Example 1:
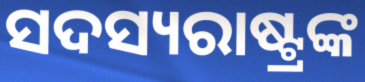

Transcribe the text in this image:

ସଦସ୍ୟରାଷ୍ଟ୍ରଙ୍କ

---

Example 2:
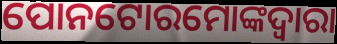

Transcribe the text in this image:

ପୋନଟୋରମୋଙ୍କଦ୍ୱାରା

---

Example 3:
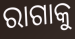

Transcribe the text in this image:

ରାଗାକୁ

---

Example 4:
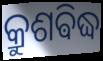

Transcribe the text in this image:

କ୍ରୁଶଵିଦ୍ଧ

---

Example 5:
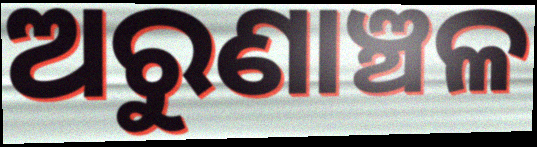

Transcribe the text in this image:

ଅରୁଣାଞ୍ଚଳ